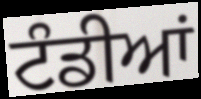
ਟੰਡੀਆਂ